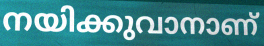
നയിക്കുവാനാണ്